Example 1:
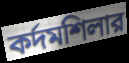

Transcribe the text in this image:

কর্দমশিলার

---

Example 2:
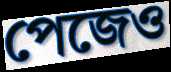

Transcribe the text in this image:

পেজেও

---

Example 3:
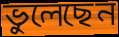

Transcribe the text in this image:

ভুলেছেন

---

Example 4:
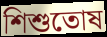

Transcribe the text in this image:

শিশুতোষ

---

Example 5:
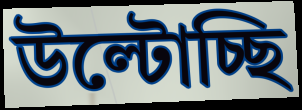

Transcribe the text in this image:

উল্টোচ্ছি